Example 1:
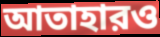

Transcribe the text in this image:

আতাহারও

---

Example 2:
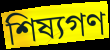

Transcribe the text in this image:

শিষ্যগণ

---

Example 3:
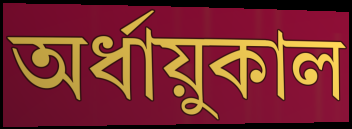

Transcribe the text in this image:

অর্ধায়ুকাল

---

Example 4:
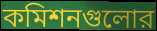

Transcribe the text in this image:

কমিশনগুলোর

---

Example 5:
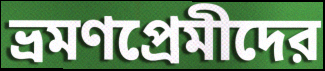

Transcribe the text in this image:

ভ্রমণপ্রেমীদের